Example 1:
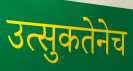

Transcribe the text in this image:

उत्सुकतेनेच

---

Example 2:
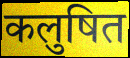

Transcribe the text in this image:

कलुषित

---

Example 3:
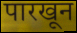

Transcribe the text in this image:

पारखून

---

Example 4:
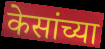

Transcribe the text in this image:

केसांच्या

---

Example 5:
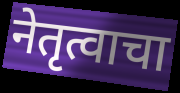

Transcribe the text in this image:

नेतृत्वाचा